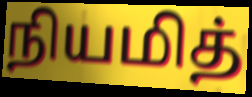
நியமித்